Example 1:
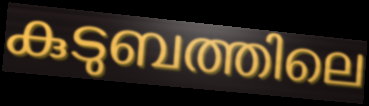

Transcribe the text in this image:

കുടുബത്തിലെ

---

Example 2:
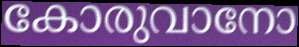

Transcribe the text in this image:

കോരുവാനോ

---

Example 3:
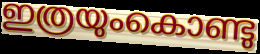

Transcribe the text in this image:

ഇത്രയുംകൊണ്ടു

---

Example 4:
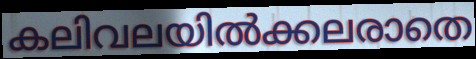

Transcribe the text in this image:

കലിവലയിൽക്കലരാതെ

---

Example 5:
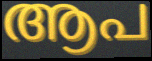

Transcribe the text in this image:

ആപ